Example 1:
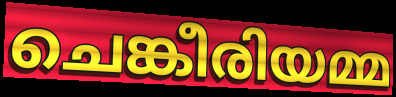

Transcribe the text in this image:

ചെങ്കീരിയമ്മ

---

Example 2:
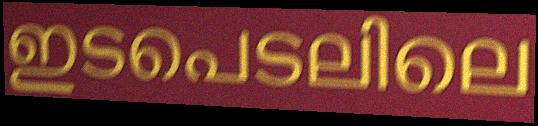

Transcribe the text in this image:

ഇടപെടലിലെ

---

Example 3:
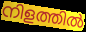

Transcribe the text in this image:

നിളത്തിൽ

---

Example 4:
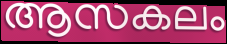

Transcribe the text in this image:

ആസകലം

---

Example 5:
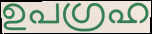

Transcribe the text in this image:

ഉപഗ്രഹ